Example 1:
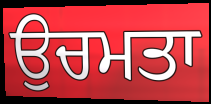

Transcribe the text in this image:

ਉਚਮਤਾ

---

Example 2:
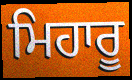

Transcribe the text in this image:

ਮਿਹਾਰੂ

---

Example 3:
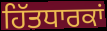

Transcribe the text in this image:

ਹਿੱਤਧਾਰਕਾਂ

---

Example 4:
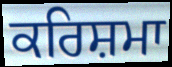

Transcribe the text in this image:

ਕਰਿਸ਼ਮਾ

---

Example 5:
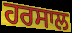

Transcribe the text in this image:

ਹਰਸਾਲ